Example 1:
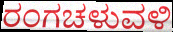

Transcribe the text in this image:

ರಂಗಚಳುವಳಿ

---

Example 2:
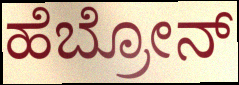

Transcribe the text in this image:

ಹೆಬ್ರೋನ್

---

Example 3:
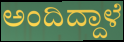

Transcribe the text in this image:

ಅಂದಿದ್ದಾಳೆ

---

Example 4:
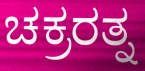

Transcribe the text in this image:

ಚಕ್ರರತ್ನ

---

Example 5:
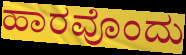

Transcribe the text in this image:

ಹಾರವೊಂದು